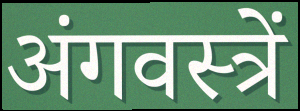
अंगवस्त्रें